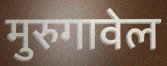
मुरुगावेल